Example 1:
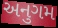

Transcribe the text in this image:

અનુગમ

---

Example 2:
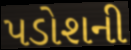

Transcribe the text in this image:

પડોશની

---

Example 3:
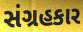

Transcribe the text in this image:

સંગ્રહકાર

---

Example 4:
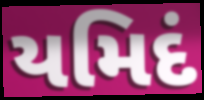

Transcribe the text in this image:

યમિદં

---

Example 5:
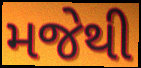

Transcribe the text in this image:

મજેથી